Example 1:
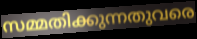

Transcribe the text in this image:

സമ്മതിക്കുന്നതുവരെ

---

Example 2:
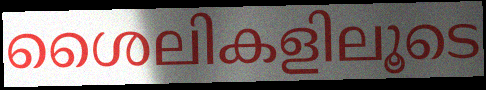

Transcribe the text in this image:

ശൈലികളിലൂടെ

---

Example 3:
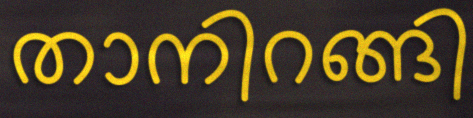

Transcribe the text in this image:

താനിറങ്ങി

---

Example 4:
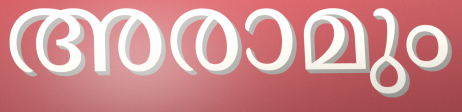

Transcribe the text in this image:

അരാമും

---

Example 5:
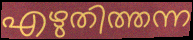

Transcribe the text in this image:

എഴുതിത്തന്ന